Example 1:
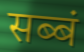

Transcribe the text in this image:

सब्बं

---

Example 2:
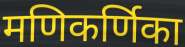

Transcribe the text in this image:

मणिकर्णिका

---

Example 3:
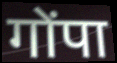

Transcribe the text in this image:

गोंपा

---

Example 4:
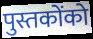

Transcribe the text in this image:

पुस्तकोंको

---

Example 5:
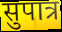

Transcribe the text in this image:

सुपात्र